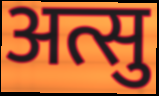
अत्सु